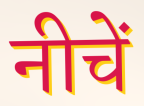
नीचें